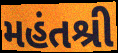
મહંતશ્રી